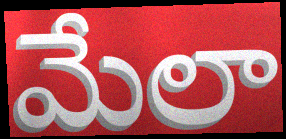
మేలా